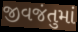
જીવજંતુમાં